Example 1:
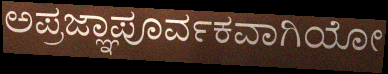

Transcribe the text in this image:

ಅಪ್ರಜ್ಞಾಪೂರ್ವಕವಾಗಿಯೋ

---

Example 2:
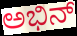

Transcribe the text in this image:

ಅಭಿನ್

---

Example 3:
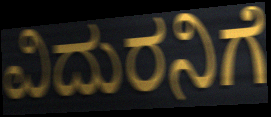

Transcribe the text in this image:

ವಿದುರನಿಗೆ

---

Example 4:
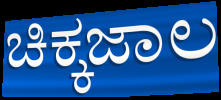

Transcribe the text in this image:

ಚಿಕ್ಕಜಾಲ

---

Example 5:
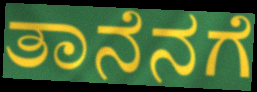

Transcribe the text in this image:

ತಾನೆನಗೆ